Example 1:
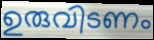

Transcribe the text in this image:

ഉരുവിടണം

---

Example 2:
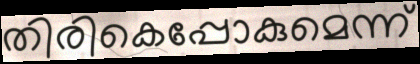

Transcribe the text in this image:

തിരികെപ്പോകുമെന്ന്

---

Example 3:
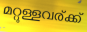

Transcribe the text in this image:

മറ്റുള്ളവര്ക്ക്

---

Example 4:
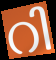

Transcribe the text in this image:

റി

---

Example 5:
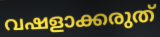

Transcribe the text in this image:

വഷളാക്കരുത്